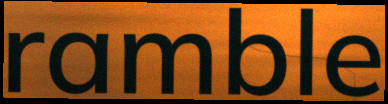
ramble